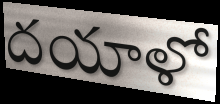
దయాళో